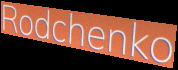
Rodchenko